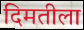
दिमतीला